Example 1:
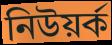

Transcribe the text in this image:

নিউয়ৰ্ক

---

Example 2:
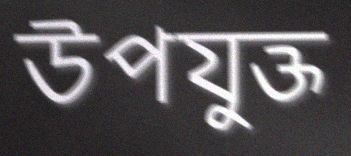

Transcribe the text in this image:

উপযুক্ত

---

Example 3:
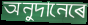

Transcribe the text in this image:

অনুদানেৰে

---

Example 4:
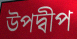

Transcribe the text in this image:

উপদ্বীপ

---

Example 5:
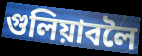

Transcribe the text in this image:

গুলিয়াবলৈ